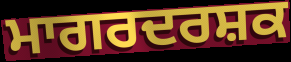
ਮਾਗਰਦਰਸ਼ਕ